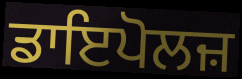
ਡਾਇਪੋਲਜ਼